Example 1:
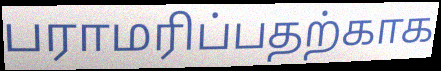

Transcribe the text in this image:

பராமரிப்பதற்காக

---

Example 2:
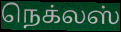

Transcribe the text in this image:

நெக்லஸ்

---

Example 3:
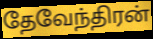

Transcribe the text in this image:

தேவேந்திரன்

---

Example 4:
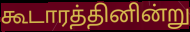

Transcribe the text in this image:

கூடாரத்தினின்று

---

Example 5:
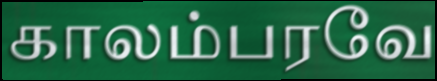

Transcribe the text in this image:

காலம்பரவே